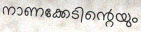
നാണക്കേടിന്റെയും